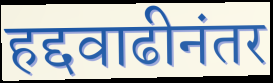
हद्दवाढीनंतर